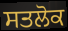
ਸਤਲੋਕ